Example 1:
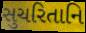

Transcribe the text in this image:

સુચરિતાનિ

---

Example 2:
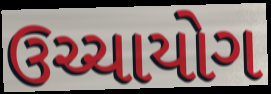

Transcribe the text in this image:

ઉચ્ચાયોગ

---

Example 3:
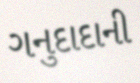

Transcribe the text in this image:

ગનુદાદાની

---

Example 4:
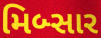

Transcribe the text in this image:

મિબ્સાર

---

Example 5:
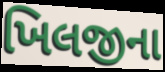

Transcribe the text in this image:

ખિલજીના